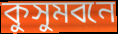
কুসুমবনে